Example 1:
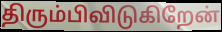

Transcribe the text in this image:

திரும்பிவிடுகிறேன்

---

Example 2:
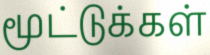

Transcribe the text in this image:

மூட்டுக்கள்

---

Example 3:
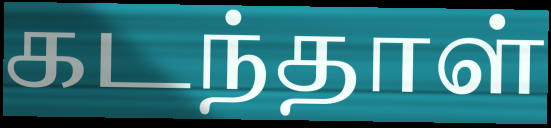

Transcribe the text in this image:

கடந்தாள்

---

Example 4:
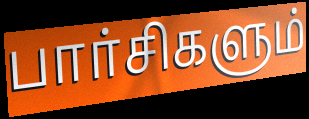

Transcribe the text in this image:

பார்சிகளும்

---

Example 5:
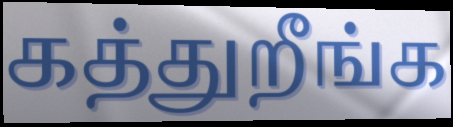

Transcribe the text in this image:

கத்துறீங்க